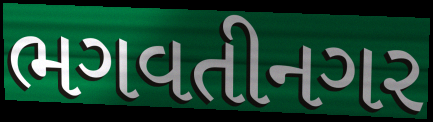
ભગવતીનગર